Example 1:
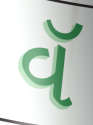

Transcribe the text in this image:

વૅ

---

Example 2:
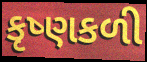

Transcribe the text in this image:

કૃષ્ણકળી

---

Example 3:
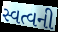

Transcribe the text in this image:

સ્વત્વની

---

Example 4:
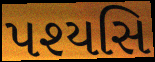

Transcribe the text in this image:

પશ્યસિ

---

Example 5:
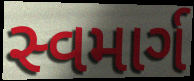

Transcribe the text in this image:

સ્વમાર્ગ